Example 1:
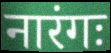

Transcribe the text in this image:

नारंगः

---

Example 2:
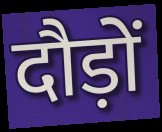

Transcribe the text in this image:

दौड़ों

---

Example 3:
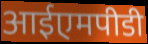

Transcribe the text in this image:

आईएमपीडी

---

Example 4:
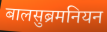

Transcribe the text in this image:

बालसुब्रमनियन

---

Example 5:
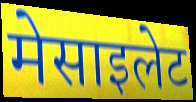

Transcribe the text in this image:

मेसाइलेट